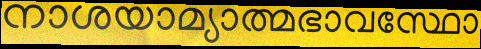
നാശയാമ്യാത്മഭാവസ്ഥോ